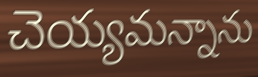
చెయ్యమన్నాను